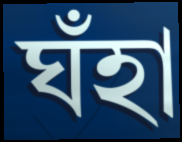
ঘঁহা